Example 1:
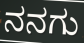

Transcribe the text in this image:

ನನಗು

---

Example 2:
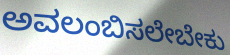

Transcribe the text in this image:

ಅವಲಂಬಿಸಲೇಬೇಕು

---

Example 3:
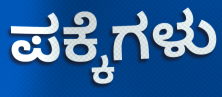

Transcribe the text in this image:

ಪಕ್ಕೆಗಳು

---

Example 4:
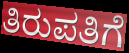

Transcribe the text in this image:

ತಿರುಪತಿಗೆ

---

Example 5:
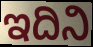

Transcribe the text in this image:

ಇದಿನಿ